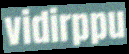
vidirppu